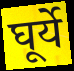
घूर्ये